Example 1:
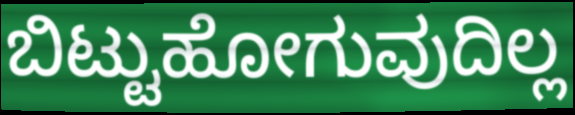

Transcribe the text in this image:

ಬಿಟ್ಟುಹೋಗುವುದಿಲ್ಲ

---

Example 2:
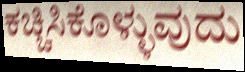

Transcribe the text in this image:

ಕಚ್ಚಿಸಿಕೊಳ್ಳುವುದು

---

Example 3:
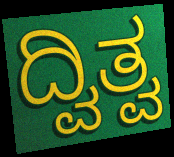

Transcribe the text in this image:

ದ್ವಿತ್ವ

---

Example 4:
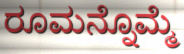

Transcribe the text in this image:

ರೂಮನ್ನೊಮ್ಮೆ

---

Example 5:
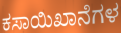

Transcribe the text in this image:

ಕಸಾಯಿಖಾನೆಗಳ